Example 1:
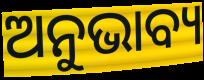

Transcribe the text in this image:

ଅନୁଭାବ୍ୟ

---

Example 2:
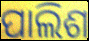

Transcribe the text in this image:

ପାଲିଶ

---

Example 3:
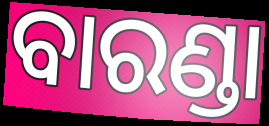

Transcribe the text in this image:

ବାରଣ୍ଡା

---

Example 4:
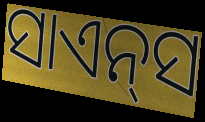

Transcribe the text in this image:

ସାଏନ୍‌ସ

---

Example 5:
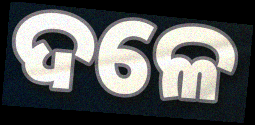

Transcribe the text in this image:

ଦଳେ